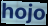
hojo